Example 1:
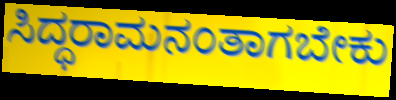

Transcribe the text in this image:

ಸಿದ್ಧರಾಮನಂತಾಗಬೇಕು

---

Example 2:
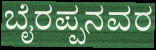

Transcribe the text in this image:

ಬೈರಪ್ಪನವರ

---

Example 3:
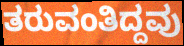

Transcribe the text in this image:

ತರುವಂತಿದ್ದವು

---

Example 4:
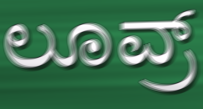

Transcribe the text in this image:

ಲೂವ್ರ್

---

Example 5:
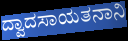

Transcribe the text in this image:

ದ್ವಾದಸಾಯತನಾನಿ